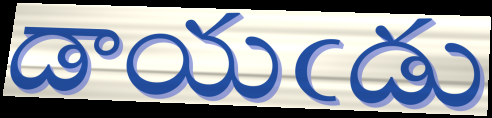
డాయఁడు